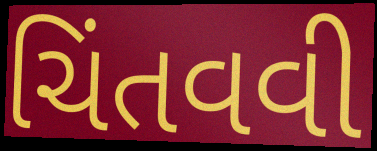
ચિંતવવી